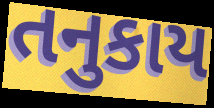
તનુકાય